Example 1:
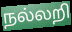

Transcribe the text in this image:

நல்லறி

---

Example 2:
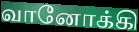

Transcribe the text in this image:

வானோக்கி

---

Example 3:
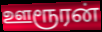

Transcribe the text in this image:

ஊரூரன்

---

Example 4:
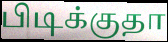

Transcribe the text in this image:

பிடிக்குதா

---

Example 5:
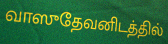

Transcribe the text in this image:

வாஸுதேவனிடத்தில்